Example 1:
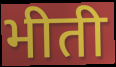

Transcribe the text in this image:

भीती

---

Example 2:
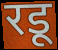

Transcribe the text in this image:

रडू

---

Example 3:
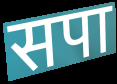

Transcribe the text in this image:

सपा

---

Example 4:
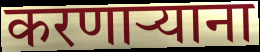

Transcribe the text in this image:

करणाऱ्याना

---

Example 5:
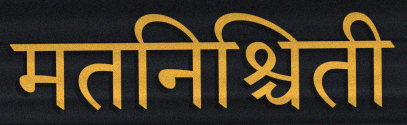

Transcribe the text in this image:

मतनिश्चिती